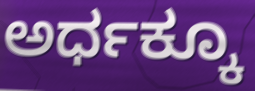
ಅರ್ಧಕ್ಕೂ